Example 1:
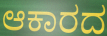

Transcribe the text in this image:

ಆಕಾರದ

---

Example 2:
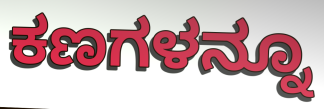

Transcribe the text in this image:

ಕಣಗಳನ್ನೂ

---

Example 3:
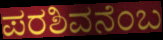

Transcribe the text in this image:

ಪರಶಿವನೆಂಬ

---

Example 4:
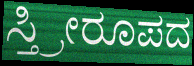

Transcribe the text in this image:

ಸ್ತ್ರೀರೂಪದ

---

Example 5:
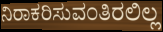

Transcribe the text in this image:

ನಿರಾಕರಿಸುವಂತಿರಲಿಲ್ಲ